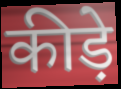
कीड़े